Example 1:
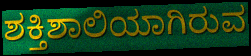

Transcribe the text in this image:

ಶಕ್ತಿಶಾಲಿಯಾಗಿರುವ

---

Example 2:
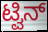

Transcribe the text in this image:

ಟ್ವಿನ್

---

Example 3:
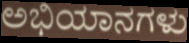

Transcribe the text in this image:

ಅಭಿಯಾನಗಳು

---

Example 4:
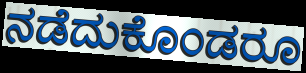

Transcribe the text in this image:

ನಡೆದುಕೊಂಡರೂ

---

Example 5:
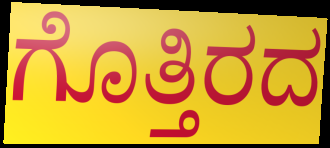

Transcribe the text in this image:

ಗೊತ್ತಿರದ